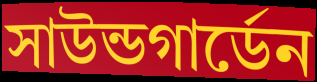
সাউন্ডগার্ডেন